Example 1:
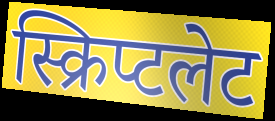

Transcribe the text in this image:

स्क्रिप्टलेट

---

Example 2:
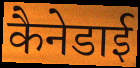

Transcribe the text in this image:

कैनेडाई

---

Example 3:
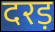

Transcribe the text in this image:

दरड़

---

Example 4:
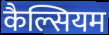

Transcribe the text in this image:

कैल्सियम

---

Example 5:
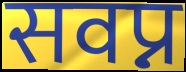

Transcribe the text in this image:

सवप्न